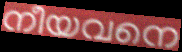
നീയവനെ